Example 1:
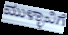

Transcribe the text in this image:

ಮುಳ್ಳಾವಿಗೆ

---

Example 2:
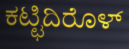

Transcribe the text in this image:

ಕಟ್ಟಿದಿರೊಳ್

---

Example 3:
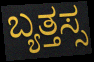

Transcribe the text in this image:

ಬ್ಯತ್ತಸ್ಸ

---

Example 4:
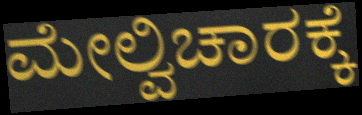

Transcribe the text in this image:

ಮೇಲ್ವಿಚಾರಕ್ಕೆ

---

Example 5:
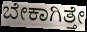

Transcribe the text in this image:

ಬೇಕಾಗಿತ್ತೇ